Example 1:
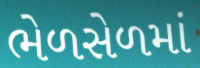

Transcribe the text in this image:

ભેળસેળમાં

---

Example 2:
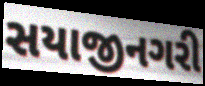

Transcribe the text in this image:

સયાજીનગરી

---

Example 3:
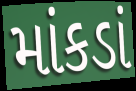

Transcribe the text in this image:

માંકડાં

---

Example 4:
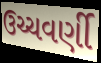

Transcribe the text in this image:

ઉચ્ચવર્ણી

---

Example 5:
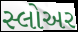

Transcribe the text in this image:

સ્લોઅર